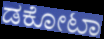
ಡಕೋಟಾ